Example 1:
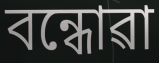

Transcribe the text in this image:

বন্ধোৱা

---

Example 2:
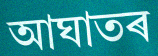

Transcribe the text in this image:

আঘাতৰ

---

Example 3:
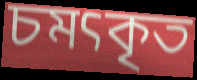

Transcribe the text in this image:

চমৎকৃত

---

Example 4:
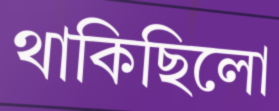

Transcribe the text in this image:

থাকিছিলো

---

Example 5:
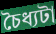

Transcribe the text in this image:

চৈধ্যটা